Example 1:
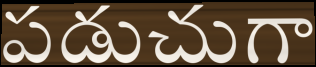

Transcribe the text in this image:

పడుచుగా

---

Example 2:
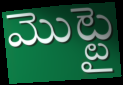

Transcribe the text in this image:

మొట్టై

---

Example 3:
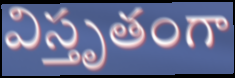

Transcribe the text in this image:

విస్తృతంగా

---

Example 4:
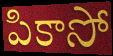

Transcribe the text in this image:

పికాసో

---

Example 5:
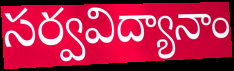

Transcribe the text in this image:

సర్వవిద్యానాం